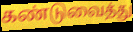
கண்டுவைத்து